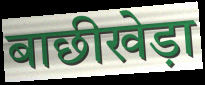
बाछीखेड़ा